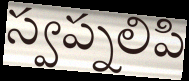
స్వప్నలిపి